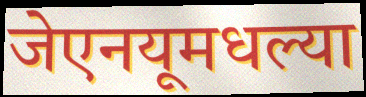
जेएनयूमधल्या